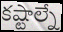
కష్టాల్నే